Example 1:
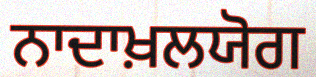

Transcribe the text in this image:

ਨਾਦਾਖ਼ਲਯੋਗ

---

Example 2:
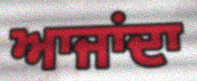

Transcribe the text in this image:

ਆਜਾਂਦਾ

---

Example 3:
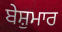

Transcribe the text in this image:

ਬੇਸ਼ੁਮਾਰ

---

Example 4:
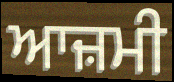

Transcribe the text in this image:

ਆਜ਼ਮੀ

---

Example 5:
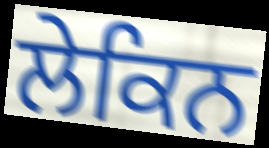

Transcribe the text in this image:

ਲੇਕਿਨ